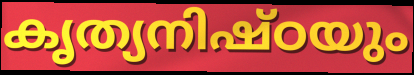
കൃത്യനിഷ്ഠയും